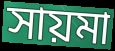
সায়মা